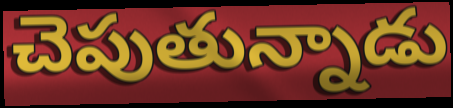
చెపుతున్నాడు